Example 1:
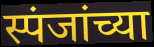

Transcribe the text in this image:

स्पंजांच्या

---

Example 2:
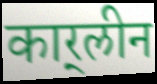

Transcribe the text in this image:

कार्लीन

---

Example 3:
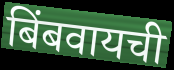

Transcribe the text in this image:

बिंबवायची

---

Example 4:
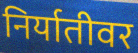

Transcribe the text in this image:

निर्यातीवर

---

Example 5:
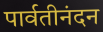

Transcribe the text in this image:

पार्वतीनंदन